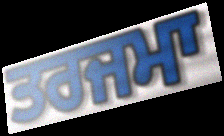
ਤਰਜਮਾ